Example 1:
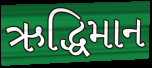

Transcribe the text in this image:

ઋદ્ધિમાન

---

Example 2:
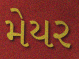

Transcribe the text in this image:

મેયર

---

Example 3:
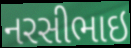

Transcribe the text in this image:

નરસીભાઇ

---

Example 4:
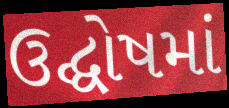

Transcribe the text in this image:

ઉદ્ઘોષમાં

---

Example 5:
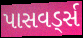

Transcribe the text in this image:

પાસવર્ડ્સ